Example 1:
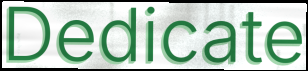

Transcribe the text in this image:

Dedicate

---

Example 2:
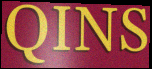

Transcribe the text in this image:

QINS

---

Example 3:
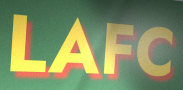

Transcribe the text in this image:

LAFC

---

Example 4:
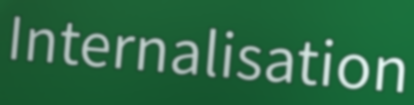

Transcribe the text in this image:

Internalisation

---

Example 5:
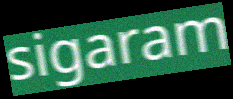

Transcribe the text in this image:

sigaram